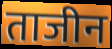
ताजीन